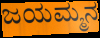
ಜಯಮ್ಮನ